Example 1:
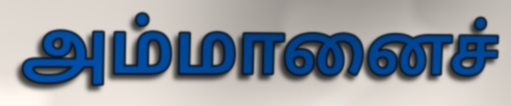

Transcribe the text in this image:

அம்மானைச்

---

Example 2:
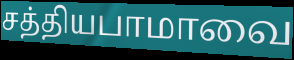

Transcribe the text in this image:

சத்தியபாமாவை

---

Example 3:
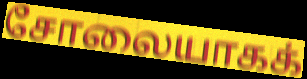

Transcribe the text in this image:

சோலையாகக்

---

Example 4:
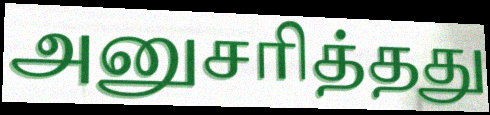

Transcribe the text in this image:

அனுசரித்தது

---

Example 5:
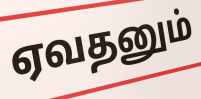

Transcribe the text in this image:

ஏவதனும்